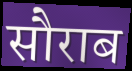
सौराब